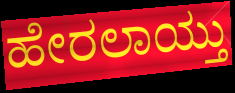
ಹೇರಲಾಯ್ತು